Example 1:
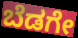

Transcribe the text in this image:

ಬೆಡಗೇ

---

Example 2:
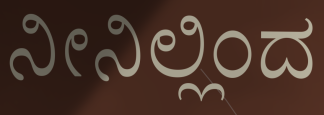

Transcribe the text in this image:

ನೀನಿಲ್ಲಿಂದ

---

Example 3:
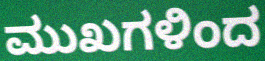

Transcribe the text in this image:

ಮುಖಗಳಿಂದ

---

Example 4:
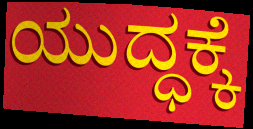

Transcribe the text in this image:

ಯುದ್ಧಕ್ಕೆ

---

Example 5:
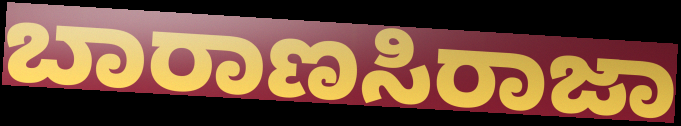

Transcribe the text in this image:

ಬಾರಾಣಸಿರಾಜಾ